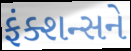
ફંક્શન્સને